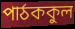
পাঠককুল